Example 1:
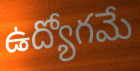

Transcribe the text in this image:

ఉద్యోగమే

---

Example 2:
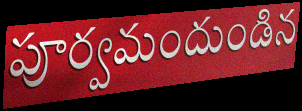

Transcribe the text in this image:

పూర్వమందుండిన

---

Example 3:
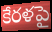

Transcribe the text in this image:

కేరళపై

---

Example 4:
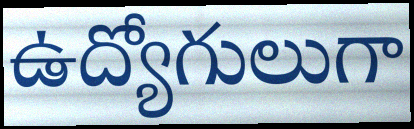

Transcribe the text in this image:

ఉద్యోగులుగా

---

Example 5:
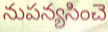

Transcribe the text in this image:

నుపన్యసించె